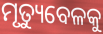
ମୃତ୍ୟୁବେଳକୁ